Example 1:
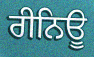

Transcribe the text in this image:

ਰੀਨਿਊ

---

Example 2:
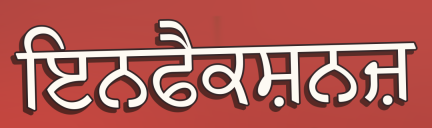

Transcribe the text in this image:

ਇਨਫੈਕਸ਼ਨਜ਼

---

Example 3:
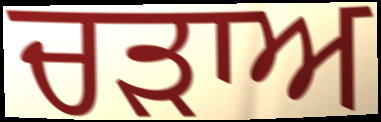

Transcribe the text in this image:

ਚੜਾਅ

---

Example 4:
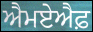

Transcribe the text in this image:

ਐਮਏਐਫ਼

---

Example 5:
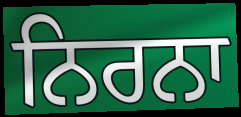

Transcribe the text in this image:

ਨਿਰਨਾ